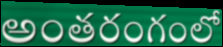
అంతరంగంలో